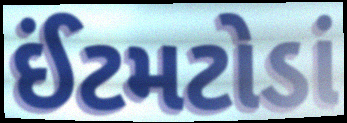
ઈંટમટોડાં